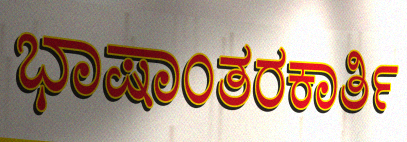
ಭಾಷಾಂತರಕಾರ್ತಿ